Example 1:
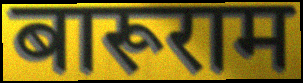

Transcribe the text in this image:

बारूराम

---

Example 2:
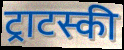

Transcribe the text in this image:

ट्राटस्की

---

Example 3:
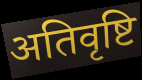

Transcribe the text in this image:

अतिवृष्टि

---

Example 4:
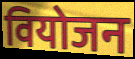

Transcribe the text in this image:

वियोजन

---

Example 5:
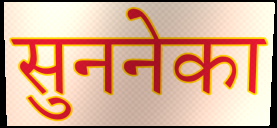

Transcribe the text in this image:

सुननेका